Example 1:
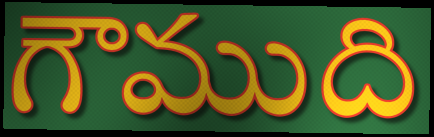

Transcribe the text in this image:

గౌముది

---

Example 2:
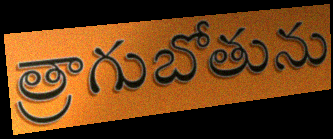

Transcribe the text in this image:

త్రాగుబోతును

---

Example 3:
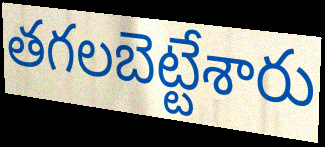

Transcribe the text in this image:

తగలబెట్టేశారు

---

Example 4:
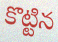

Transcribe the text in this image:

కొట్టిన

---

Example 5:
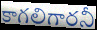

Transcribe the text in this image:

కాగలిగారనీ